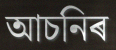
আচনিৰ